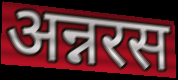
अन्नरस